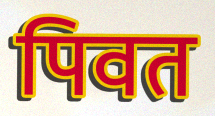
पिवत